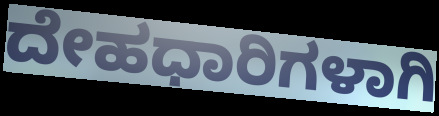
ದೇಹಧಾರಿಗಳಾಗಿ